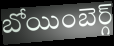
బోయింబెర్గ్